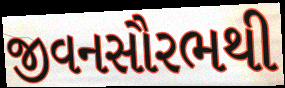
જીવનસૌરભથી